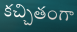
కచ్చితంగా